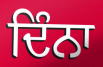
ਦਿੰਨਾ